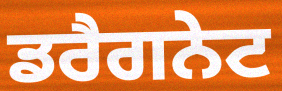
ਡਰੈਗਨੇਟ